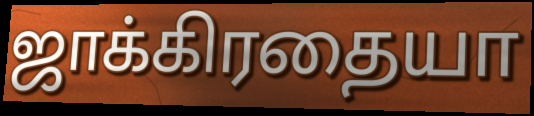
ஜாக்கிரதையா